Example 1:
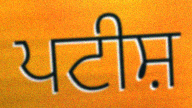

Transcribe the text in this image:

ਪਟੀਸ਼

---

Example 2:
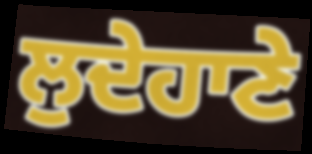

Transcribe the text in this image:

ਲੁਦੇਹਾਣੇ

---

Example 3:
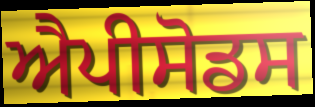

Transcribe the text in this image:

ਐਪੀਸੋਡਸ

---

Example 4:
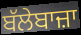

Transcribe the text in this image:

ਬੱਲੇਬਾਜ਼ਾ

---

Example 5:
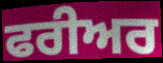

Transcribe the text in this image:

ਫਰੀਅਰ